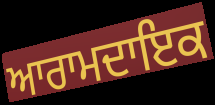
ਆਰਾਮਦਾਇਕ